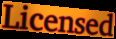
Licensed